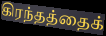
கிரந்தத்தைக்